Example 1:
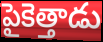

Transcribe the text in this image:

పైకెత్తాడు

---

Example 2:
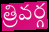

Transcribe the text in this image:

త్రివర్గ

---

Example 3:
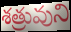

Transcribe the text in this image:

శత్రువుని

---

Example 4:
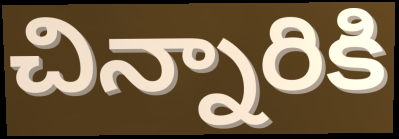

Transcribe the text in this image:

చిన్నారికి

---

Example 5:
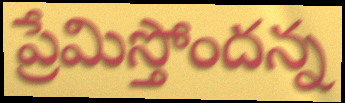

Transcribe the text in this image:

ప్రేమిస్తోందన్న